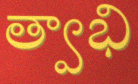
త్వాభి